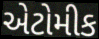
એટોમીક